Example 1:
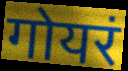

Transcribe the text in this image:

गोयरं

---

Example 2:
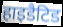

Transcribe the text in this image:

हाइडैटिड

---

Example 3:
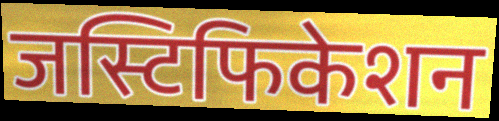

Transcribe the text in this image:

जस्टिफिकेशन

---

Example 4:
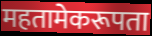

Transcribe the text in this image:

महतामेकरूपता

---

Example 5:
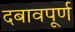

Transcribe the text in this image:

दबावपूर्ण